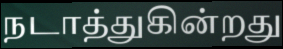
நடாத்துகின்றது